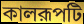
কালরূপটি